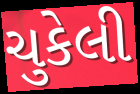
ચુકેલી